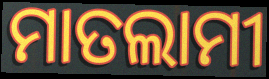
ମାତଲାମୀ